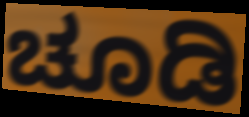
ಚೂಡಿ